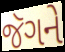
જૅગને